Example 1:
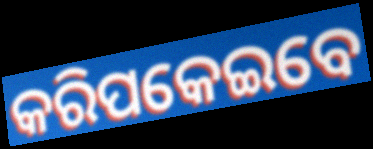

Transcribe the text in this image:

କରିପକେଇବେ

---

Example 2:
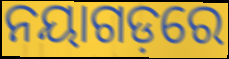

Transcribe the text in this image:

ନୟାଗଡ଼ରେ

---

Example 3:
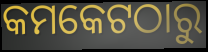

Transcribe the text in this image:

କମକେଟଠାରୁ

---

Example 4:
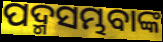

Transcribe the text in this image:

ପଦ୍ମସମ୍ଭବାଙ୍କ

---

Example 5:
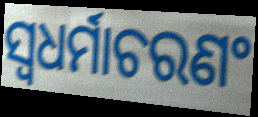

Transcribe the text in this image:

ସ୍ୱଧର୍ମାଚରଣଂ